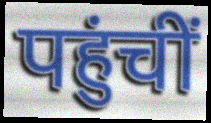
पहुंचीं